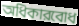
অধিকারবোধ